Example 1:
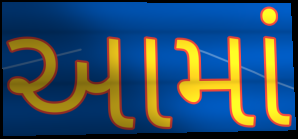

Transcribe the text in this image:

આમાં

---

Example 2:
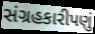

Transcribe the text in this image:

સંગ્રહકારીપણું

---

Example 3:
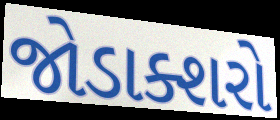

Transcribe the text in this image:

જોડાક્શરો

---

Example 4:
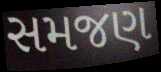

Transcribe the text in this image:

સમજણ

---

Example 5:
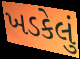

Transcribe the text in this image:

ખડકેલું